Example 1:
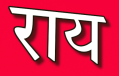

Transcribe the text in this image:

राय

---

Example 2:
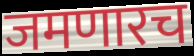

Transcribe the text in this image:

जमणारच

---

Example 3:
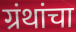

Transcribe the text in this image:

ग्रंथांचा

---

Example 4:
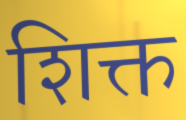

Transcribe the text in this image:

शिक्त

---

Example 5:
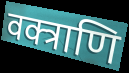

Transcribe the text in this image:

वक्त्राणि